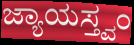
ಜ್ಯಾಯಸ್ತ್ವಂ